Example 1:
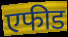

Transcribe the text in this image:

एफीड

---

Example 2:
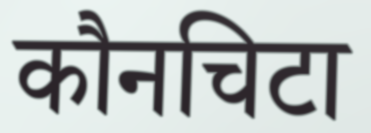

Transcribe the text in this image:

कौनचिटा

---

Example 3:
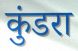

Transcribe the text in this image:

कुंडरा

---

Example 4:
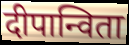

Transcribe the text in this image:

दीपान्विता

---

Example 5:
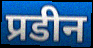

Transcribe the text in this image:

प्रडीन